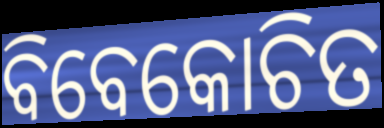
ବିବେକୋଚିତ